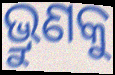
ଭ୍ରୁଣକୁ